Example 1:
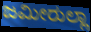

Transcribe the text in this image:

ಜಮೀರುಲ್ಲಾ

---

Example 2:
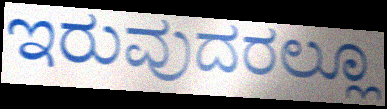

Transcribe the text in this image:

ಇರುವುದರಲ್ಲೂ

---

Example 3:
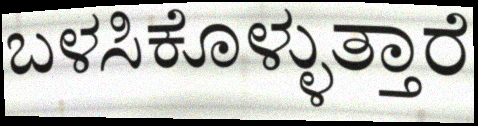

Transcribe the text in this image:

ಬಳಸಿಕೊಳ್ಳುತ್ತಾರೆ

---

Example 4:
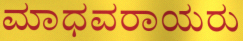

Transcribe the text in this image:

ಮಾಧವರಾಯರು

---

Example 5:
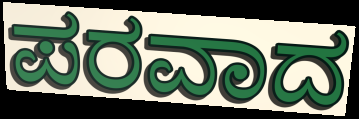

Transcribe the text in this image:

ಪರವಾದ